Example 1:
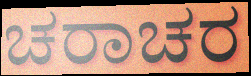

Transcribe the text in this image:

ಚರಾಚರ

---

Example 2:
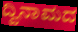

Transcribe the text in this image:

ದ್ವಿನಾಮದ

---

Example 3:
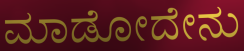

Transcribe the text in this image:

ಮಾಡೋದೇನು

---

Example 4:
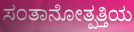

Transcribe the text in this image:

ಸಂತಾನೋತ್ಪತ್ತಿಯ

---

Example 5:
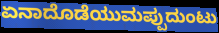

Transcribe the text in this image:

ಏನಾದೊಡೆಯುಮಪ್ಪುದುಂಟು